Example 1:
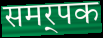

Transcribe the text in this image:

समर्पक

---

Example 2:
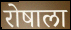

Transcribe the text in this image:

रोषाला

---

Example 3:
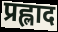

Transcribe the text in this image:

प्रह्लाद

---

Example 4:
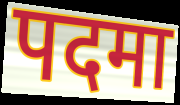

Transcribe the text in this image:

पदमा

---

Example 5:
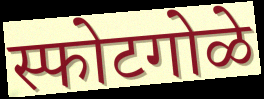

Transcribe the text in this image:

स्फोटगोळे